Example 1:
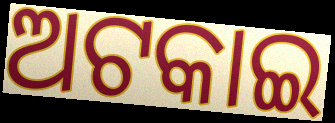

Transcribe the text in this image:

ଅଟକାଇ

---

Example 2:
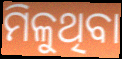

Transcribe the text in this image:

ମିଳୁଥିବା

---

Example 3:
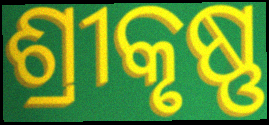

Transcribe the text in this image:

ଶ୍ରୀକୃଷ୍ଣ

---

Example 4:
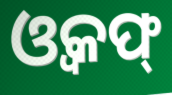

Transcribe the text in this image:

ଓ୍ୱକଫ୍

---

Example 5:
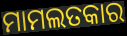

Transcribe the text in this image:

ମାମଲତକାର